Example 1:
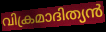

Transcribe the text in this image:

വിക്രമാദിത്യൻ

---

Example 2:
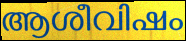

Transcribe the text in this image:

ആശീവിഷം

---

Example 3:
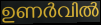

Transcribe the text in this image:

ഉണർവിൽ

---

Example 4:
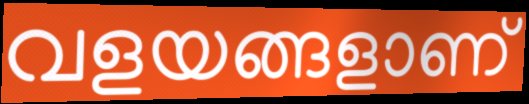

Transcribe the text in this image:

വളയങ്ങളാണ്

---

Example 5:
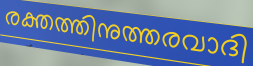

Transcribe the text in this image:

രക്തത്തിനുത്തരവാദി